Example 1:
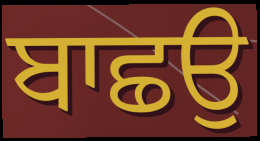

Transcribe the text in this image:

ਬਾਛਉ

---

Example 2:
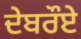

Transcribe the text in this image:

ਦੇਬਰੌਏ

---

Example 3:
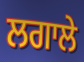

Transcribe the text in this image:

ਲਗਾਲੇ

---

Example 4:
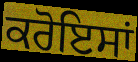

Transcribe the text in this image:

ਕਰੋਇਸਾਂ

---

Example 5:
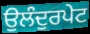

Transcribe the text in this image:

ਉਲੰਦੁਰਪੇਟ